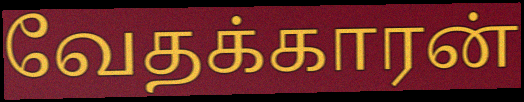
வேதக்காரன்